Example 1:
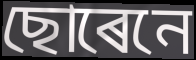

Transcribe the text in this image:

ছোৰেনে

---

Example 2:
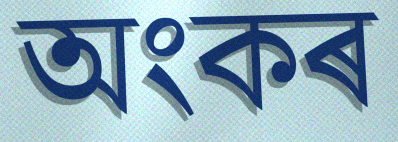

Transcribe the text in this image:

অংকৰ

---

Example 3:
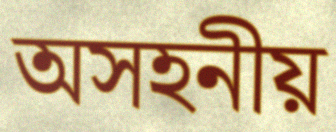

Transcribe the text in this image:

অসহনীয়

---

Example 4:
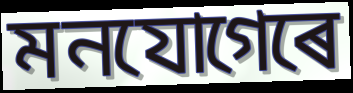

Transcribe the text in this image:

মনযোগেৰে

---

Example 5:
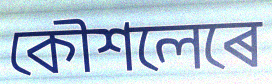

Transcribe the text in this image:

কৌশলেৰে